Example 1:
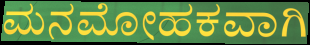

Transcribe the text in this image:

ಮನಮೋಹಕವಾಗಿ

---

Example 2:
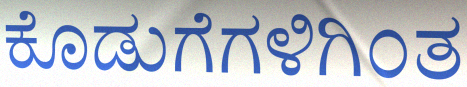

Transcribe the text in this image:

ಕೊಡುಗೆಗಳಿಗಿಂತ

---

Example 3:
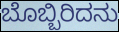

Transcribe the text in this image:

ಬೊಬ್ಬಿರಿದನು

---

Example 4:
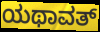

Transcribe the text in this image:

ಯಥಾವತ್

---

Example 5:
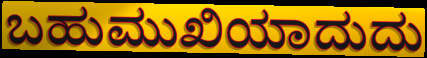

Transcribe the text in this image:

ಬಹುಮುಖಿಯಾದುದು